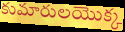
కుమారులయొక్క